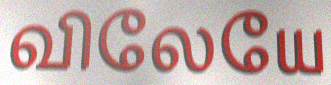
விலேயே